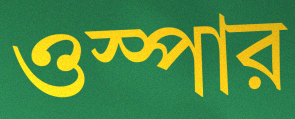
ওস্পার